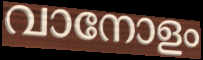
വാനോളം